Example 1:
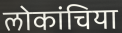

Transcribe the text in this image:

लोकांचिया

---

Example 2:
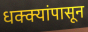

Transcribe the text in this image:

धक्क्यांपासून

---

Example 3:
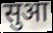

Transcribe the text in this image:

सुआ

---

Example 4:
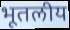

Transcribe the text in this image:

भूतलीय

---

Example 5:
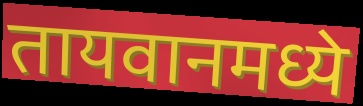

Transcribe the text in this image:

तायवानमध्ये